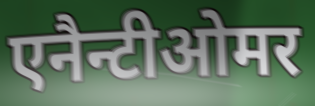
एनैन्टीओमर